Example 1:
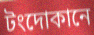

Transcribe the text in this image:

টংদোকানে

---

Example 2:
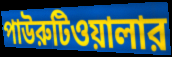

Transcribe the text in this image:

পাউরুটিওয়ালার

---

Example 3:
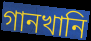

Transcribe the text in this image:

গানখানি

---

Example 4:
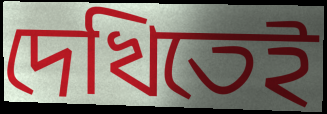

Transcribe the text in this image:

দেখিতেই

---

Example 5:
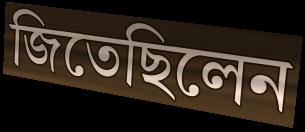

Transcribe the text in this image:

জিতেছিলেন